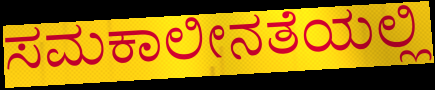
ಸಮಕಾಲೀನತೆಯಲ್ಲಿ